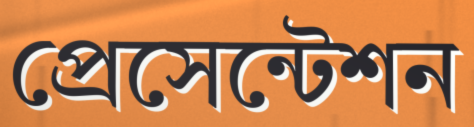
প্রেসেন্টেশন